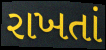
રાખતાં